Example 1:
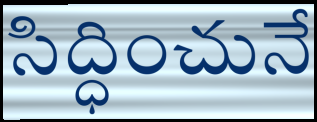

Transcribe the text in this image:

సిద్ధించునే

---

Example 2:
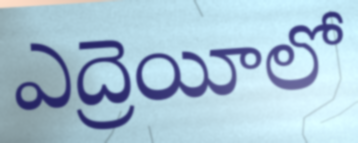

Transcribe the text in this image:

ఎద్రెయీలో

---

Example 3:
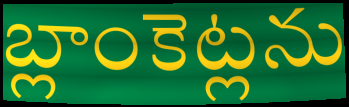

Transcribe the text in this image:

బ్లాంకెట్లను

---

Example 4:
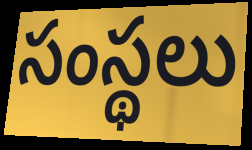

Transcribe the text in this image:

సంస్థలు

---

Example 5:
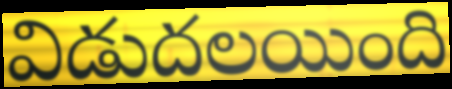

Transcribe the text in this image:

విడుదలయింది